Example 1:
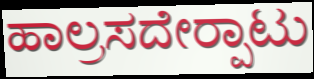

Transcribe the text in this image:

ಹಾಲ್ರಸದೇರ‍್ಪಾಟು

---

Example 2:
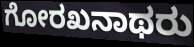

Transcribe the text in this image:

ಗೋರಖನಾಥರು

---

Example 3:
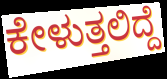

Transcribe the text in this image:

ಕೇಳುತ್ತಲಿದ್ದೆ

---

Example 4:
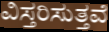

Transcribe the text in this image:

ವಿಸ್ತರಿಸುತ್ತವೆ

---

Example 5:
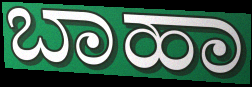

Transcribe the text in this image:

ಬಾಹಾ